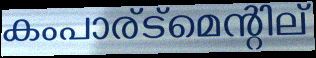
കംപാര്ട്മെന്റില്